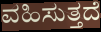
ವಹಿಸುತ್ತದೆ